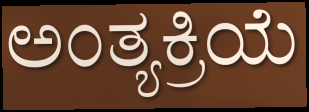
ಅಂತ್ಯಕ್ರಿಯೆ